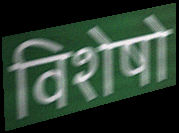
विशेषो